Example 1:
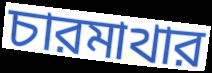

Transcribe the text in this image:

চারমাথার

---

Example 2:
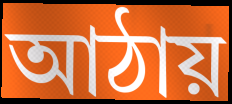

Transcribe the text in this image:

আঠায়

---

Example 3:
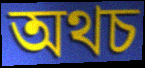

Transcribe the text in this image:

অথচ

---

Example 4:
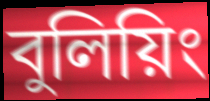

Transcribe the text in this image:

বুলিয়িং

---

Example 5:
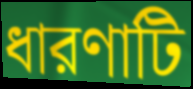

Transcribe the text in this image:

ধারণাটি